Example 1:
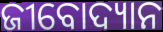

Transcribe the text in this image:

ଜୀବୋଦ୍ୟାନ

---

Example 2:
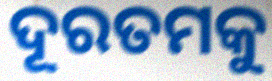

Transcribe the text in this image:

ଦୂରତମକୁ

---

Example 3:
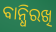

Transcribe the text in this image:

ବାନ୍ଧିରଖି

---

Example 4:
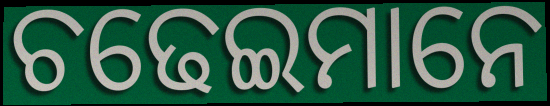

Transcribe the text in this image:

ଚଢେଇମାନେ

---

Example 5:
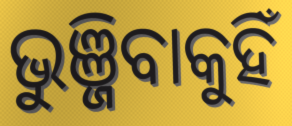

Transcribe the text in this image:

ଭୁଞ୍ଜିବାକୁହିଁ